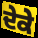
ਦੇਕੇ